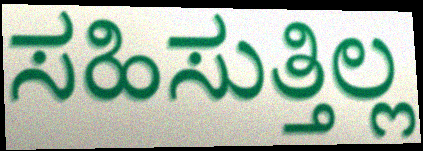
ಸಹಿಸುತ್ತಿಲ್ಲ